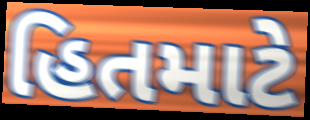
હિતમાટે